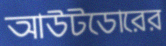
আউটডোরের